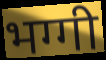
भग्गी